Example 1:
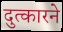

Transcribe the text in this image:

दुत्कारने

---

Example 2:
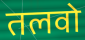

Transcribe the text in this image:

तलवो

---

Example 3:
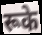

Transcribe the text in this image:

रूके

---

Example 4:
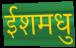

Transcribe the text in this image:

ईशमधु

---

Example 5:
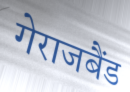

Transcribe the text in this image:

गेराजबैंड